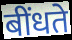
बींधते